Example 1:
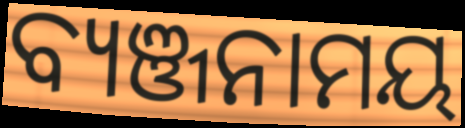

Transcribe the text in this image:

ବ୍ୟଞ୍ଜନାମୟ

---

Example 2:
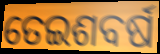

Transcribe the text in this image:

ତେଇଶବର୍ଷ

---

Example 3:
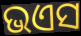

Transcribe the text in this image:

ଭଏସ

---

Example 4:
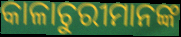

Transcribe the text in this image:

କାଳାଚୁରୀମାନଙ୍କ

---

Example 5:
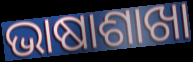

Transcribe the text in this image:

ଭାଷାଶାଖା